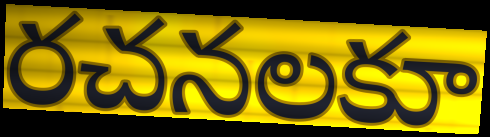
రచనలకూ